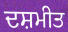
ਦਸ਼ਮੀਤ